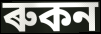
ৰুকন